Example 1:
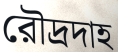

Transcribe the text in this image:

রৌদ্রদাহ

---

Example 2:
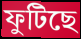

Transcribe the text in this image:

ফুটিছে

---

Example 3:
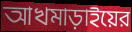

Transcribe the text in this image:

আখমাড়াইয়ের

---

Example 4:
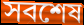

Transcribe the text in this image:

সবশেষ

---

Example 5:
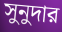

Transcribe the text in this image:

সুনুদার